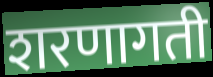
शरणागती